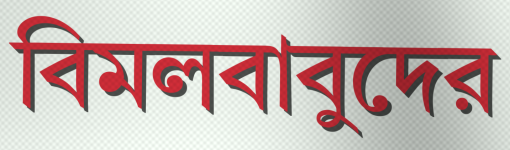
বিমলবাবুদের